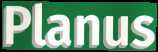
Planus